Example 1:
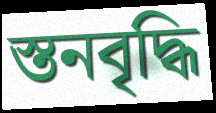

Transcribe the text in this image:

স্তনবৃদ্ধি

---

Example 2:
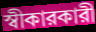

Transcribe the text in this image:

স্বীকারকারী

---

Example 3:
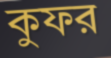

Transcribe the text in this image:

কুফর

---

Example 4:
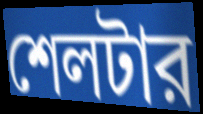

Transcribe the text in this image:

শেলটার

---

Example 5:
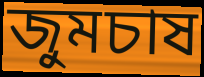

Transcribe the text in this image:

জুমচাষ